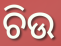
ଚିଉ